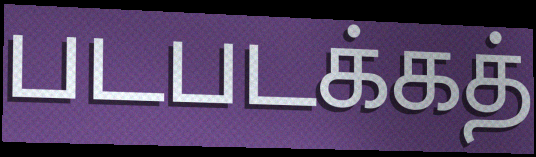
படபடக்கத்